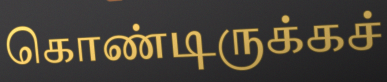
கொண்டிருக்கச்